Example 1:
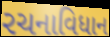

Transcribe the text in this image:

રચનાવિધાન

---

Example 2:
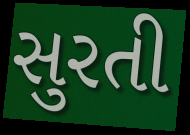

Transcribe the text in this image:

સુરતી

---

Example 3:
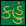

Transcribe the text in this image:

કહું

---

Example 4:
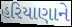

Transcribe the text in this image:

હરિયાણાને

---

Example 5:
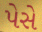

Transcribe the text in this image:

પેસે